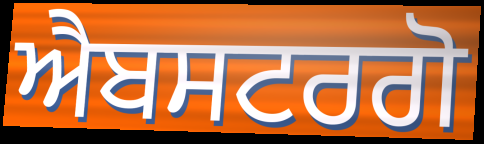
ਐਬਸਟਰਗੋ